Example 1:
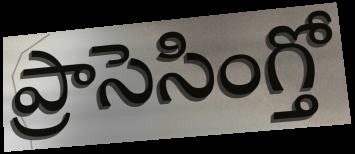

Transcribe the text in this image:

ప్రాసెసింగ్తో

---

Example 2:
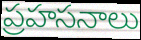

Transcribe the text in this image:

ప్రహసనాలు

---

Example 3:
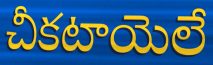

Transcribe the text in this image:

చీకటాయెలే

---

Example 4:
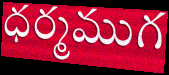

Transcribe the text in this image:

ధర్మముగ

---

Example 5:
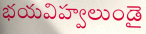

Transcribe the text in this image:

భయవిహ్వలుండై